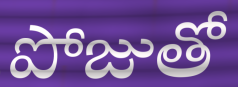
పోజుతో